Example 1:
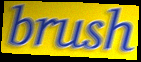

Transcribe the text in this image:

brush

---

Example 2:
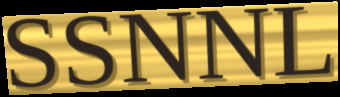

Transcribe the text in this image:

SSNNL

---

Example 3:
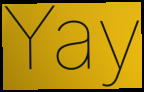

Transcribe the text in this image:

Yay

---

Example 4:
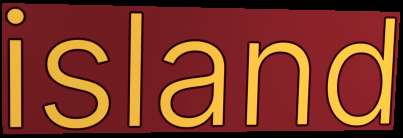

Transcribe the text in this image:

island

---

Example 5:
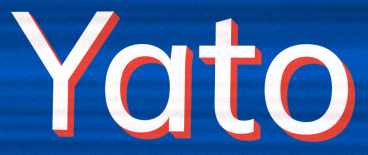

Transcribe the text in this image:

Yato